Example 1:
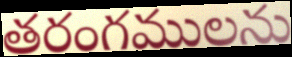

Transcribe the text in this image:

తరంగములను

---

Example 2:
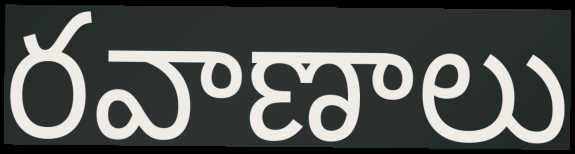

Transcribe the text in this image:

రవాణాలు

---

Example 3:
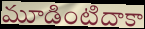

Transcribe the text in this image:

మూడింటిదాకా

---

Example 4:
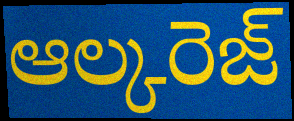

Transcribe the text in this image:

ఆల్కరెజ్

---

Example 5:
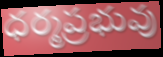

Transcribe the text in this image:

ధర్మప్రభువు